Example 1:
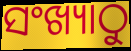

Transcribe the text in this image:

ସଂଖ୍ୟାଠୁ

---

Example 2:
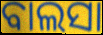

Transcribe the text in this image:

ବାଲସା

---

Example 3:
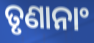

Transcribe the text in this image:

ତୃଣାନାଂ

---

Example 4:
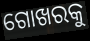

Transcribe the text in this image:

ଗୋଖରକୁ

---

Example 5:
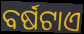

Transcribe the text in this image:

ବର୍ଷଟାଏ